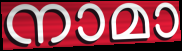
നാമാ